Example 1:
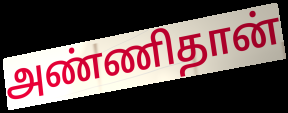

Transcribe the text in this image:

அண்ணிதான்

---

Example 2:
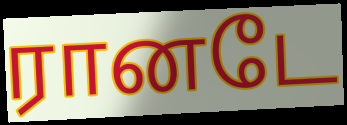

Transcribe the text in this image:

ரானடே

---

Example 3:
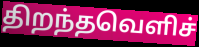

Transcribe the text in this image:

திறந்தவெளிச்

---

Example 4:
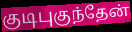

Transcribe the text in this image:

குடிபுகுந்தேன்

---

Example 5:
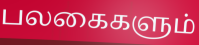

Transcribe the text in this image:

பலகைகளும்